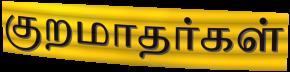
குறமாதர்கள்